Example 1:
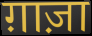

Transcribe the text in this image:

ग़ाज़ा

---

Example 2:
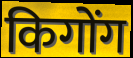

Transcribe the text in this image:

किगोंग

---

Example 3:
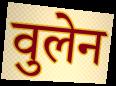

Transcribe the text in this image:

वुलेन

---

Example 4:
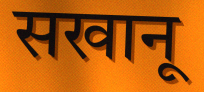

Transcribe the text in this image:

सखानू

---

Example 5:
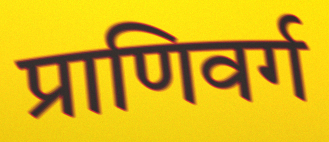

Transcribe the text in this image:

प्राणिवर्ग